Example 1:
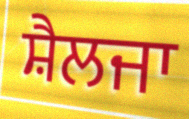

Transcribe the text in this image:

ਸ਼ੈਲਜਾ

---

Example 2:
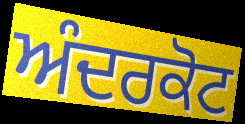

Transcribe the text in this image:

ਅੰਦਰਕੋਟ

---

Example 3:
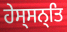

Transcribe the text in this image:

ਹੇਸ੍ਸਨ੍ਤਿ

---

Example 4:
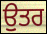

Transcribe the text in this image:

ਉੁਤਰ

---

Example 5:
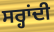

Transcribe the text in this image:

ਸਰ੍ਹਾਂਦੀ